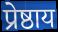
प्रेष्ठाय